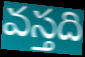
వస్తది